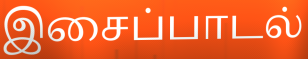
இசைப்பாடல்